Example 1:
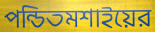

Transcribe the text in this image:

পন্ডিতমশাইয়ের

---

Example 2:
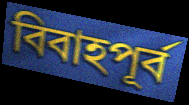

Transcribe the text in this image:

বিবাহপূর্ব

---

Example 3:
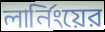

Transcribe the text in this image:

লার্নিংয়ের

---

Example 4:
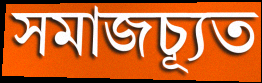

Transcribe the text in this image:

সমাজচ্যূত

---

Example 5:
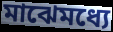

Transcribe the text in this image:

মাঝেমধ্যে